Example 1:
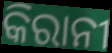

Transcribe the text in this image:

କିରାନୀ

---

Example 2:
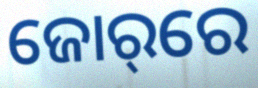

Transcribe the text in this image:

ଜୋର୍‌ରେ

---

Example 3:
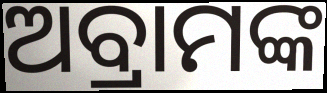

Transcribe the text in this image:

ଅବ୍ରାମଙ୍କ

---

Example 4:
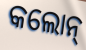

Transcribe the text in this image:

କଲୋନ୍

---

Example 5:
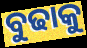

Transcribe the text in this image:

ବୁଢାକୁ